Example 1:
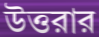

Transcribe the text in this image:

উত্তরার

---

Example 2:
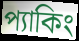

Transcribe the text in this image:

প্যাকিং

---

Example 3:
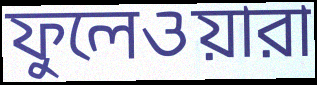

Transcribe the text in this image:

ফুলেওয়ারা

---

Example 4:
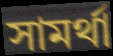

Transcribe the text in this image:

সামর্থা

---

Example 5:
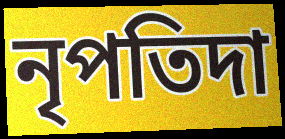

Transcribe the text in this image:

নৃপতিদা